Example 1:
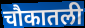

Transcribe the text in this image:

चौकातली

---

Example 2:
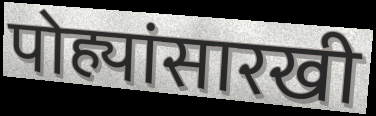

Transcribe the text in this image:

पोह्यांसारखी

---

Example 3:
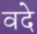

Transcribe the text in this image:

वदे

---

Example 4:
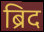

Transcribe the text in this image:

ब्रिद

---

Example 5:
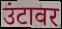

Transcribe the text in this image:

उंटावर